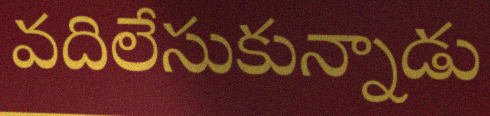
వదిలేసుకున్నాడు